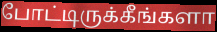
போட்டிருக்கீங்களா